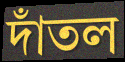
দাঁতল